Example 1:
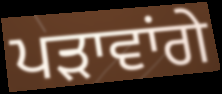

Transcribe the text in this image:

ਪੜਾਵਾਂਗੇ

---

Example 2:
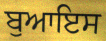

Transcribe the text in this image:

ਬੁਆਇਸ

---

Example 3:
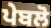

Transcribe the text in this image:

ਪੇਬਲੋ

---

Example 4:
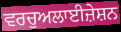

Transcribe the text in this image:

ਵਰਚੁਅਲਾਈਜ਼ੇਸ਼ਨ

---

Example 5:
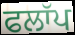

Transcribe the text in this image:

ਫਲਾੱਪ